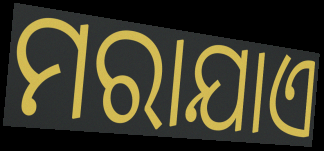
ମରାଯାଏ